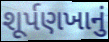
શૂર્પણખાનું